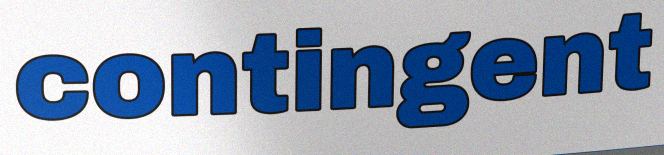
contingent